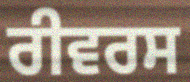
ਰੀਵਰਸ